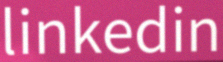
linkedin